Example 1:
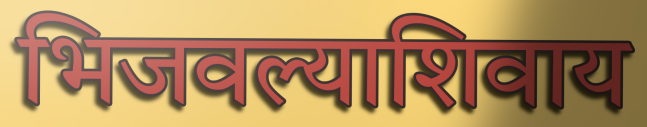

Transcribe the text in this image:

भिजवल्याशिवाय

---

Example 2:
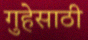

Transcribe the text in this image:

गुहेसाठी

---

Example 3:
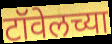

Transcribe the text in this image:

टॉवेलच्या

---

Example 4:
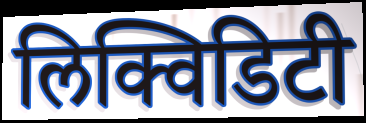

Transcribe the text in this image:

लिक्विडिटी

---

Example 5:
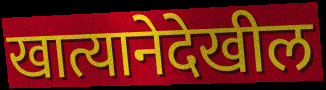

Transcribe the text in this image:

खात्यानेदेखील